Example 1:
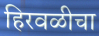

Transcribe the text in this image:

हिरवळीचा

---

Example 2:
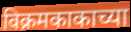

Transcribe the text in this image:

विक्रमकाकाच्या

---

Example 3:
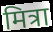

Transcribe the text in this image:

मित्रा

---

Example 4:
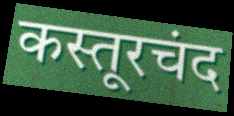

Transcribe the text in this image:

कस्तूरचंद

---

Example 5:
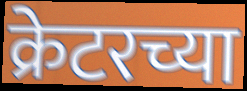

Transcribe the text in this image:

क्रेटरच्या